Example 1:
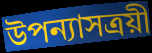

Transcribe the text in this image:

উপন্যাসত্রয়ী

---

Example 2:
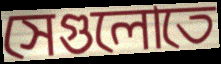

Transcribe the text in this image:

সেগুলোতে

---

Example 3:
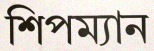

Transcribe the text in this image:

শিপম্যান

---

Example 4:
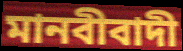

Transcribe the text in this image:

মানবীবাদী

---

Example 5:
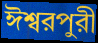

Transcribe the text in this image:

ঈশ্বরপুরী